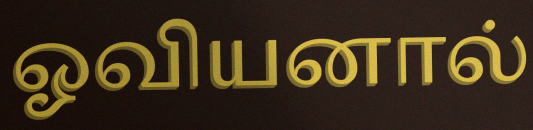
ஓவியனால்